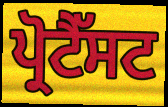
ਪ੍ਰੋਟੈੱਸਟ